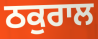
ਠਕੁਰਾਲ